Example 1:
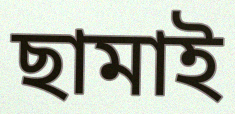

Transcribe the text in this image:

ছামাই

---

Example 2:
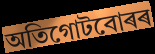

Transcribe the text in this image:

অতিগোটবোৰৰ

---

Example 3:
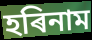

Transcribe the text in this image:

হৰিনাম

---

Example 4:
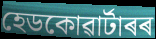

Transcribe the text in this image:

হেডকোৱাৰ্টাৰৰ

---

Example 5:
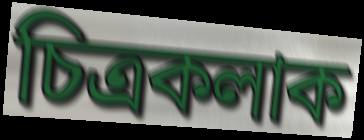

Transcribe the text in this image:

চিত্ৰকলাক